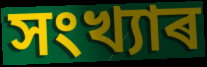
সংখ্যাৰ